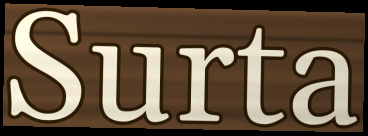
Surta